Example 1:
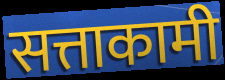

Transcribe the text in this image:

सत्ताकामी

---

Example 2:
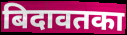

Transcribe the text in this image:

बिदावतका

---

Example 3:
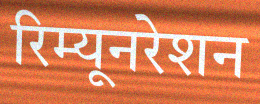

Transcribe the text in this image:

रिम्यूनरेशन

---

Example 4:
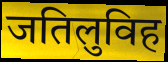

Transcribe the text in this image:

जतिलुविह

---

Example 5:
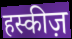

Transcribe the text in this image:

हस्कीज़